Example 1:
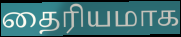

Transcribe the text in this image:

தைரியமாக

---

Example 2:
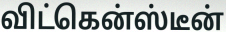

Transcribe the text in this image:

விட்கென்ஸ்டீன்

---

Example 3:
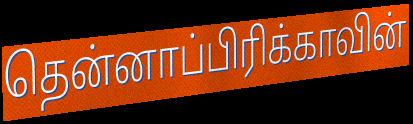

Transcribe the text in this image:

தென்னாப்பிரிக்காவின்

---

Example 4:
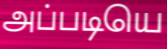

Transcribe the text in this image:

அப்படியெ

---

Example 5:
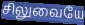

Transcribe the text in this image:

சிலுவையே